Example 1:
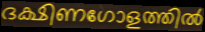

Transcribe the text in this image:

ദക്ഷിണഗോളത്തിൽ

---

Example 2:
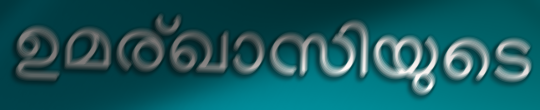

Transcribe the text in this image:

ഉമര്ഖാസിയുടെ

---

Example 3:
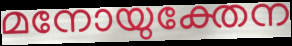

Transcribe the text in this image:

മനോയുക്തേന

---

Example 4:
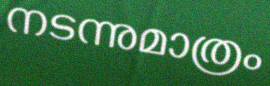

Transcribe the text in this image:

നടന്നുമാത്രം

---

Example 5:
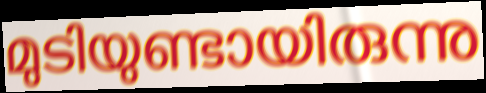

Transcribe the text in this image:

മുടിയുണ്ടായിരുന്നു